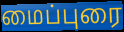
மைப்புரை